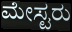
ಮೇಸ್ಟರು